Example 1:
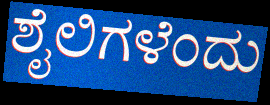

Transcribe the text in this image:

ಶೈಲಿಗಳೆಂದು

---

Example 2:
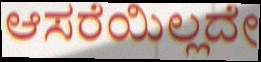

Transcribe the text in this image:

ಆಸರೆಯಿಲ್ಲದೇ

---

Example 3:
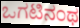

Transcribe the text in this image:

ಒಗಟಿನಂಥ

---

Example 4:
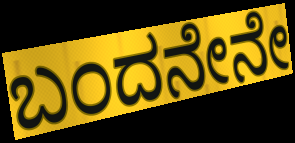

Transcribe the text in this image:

ಬಂದನೇನೇ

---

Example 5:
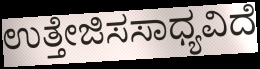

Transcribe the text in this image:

ಉತ್ತೇಜಿಸಸಾಧ್ಯವಿದೆ